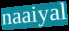
naaiyal